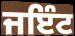
ਜਇੰਟ